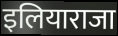
इलियाराजा